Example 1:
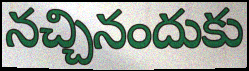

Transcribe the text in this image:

నచ్చినందుకు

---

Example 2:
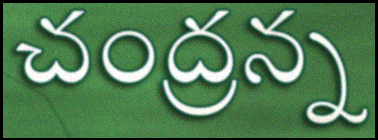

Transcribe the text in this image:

చంద్రన్న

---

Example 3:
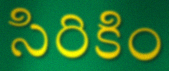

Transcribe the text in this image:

సిరికిం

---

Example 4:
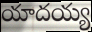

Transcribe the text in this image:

యాదయ్య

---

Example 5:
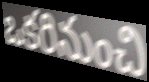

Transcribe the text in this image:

ఒకరినుంచి